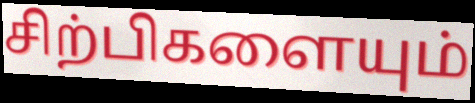
சிற்பிகளையும்